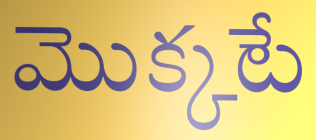
మొక్కటే